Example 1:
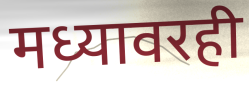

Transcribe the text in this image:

मध्यावरही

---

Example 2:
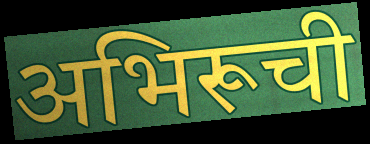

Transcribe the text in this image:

अभिरूची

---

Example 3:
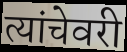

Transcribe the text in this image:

त्यांचेवरी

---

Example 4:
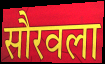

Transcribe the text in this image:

सौरवला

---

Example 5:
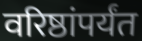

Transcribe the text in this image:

वरिष्ठांपर्यंत